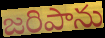
జరిపాను